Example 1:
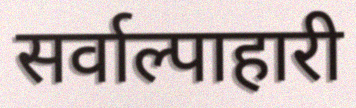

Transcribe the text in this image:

सर्वाल्पाहारी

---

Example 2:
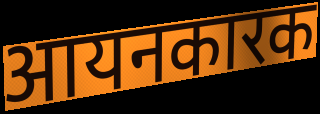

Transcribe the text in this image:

आयनकारक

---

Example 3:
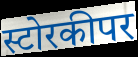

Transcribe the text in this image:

स्टोरकीपर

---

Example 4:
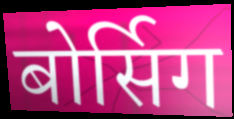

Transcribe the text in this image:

बोर्सिग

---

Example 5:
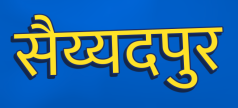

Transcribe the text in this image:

सैय्यदपुर